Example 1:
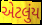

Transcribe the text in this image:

એટલુંય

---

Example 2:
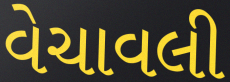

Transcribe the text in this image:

વેચાવલી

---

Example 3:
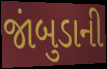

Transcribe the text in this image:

જાંબુડાની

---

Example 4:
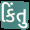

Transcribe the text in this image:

કિંતુ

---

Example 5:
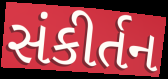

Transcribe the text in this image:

સંકીર્તન